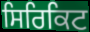
ਸਿਰਿਕਿਟ